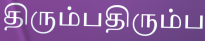
திரும்பதிரும்ப